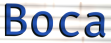
Boca